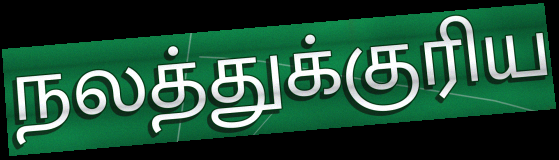
நலத்துக்குரிய